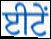
ਈਟੇਂ